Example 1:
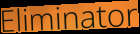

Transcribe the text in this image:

Eliminator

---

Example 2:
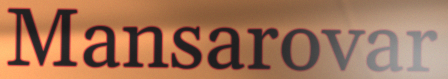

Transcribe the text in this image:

Mansarovar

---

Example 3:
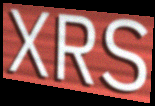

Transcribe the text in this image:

XRS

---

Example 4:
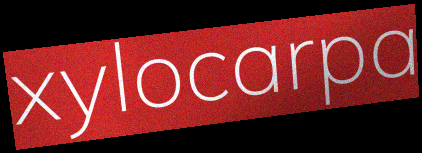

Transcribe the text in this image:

xylocarpa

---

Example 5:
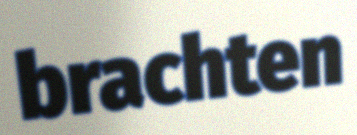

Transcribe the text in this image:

brachten